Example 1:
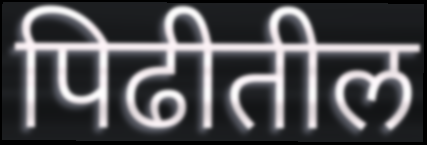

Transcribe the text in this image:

पिढीतील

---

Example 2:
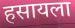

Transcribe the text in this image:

हसायला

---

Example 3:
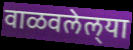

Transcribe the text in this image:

वाळवलेल्या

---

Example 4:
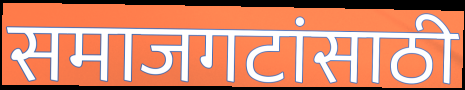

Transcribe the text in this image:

समाजगटांसाठी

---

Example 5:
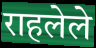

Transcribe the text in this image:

राहलेले